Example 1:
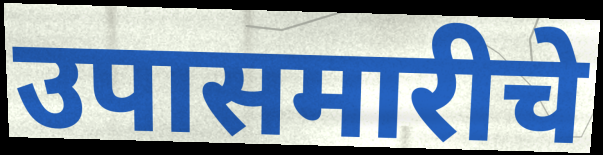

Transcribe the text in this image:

उपासमारीचे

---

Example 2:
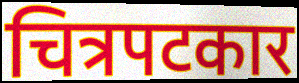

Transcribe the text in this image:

चित्रपटकार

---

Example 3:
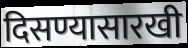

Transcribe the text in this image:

दिसण्यासारखी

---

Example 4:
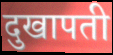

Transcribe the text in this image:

दुखापती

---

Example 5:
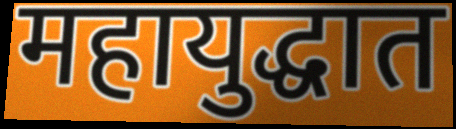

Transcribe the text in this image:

महायुद्धात